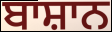
ਬਾਸ਼ਾਨ